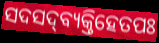
ସଦସଦ୍‌ବ୍ୟକ୍ତିହେତପଃ